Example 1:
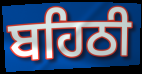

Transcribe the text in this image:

ਬਹਿਠੀ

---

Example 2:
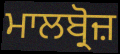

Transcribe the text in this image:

ਮਾਲਬ੍ਰੋਜ਼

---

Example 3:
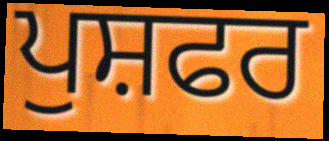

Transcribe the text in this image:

ਪੁਸ਼ਫਰ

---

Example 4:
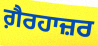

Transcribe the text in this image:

ਗ਼ੈਰਹਾਜ਼ਰ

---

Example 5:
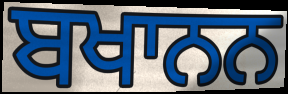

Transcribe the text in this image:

ਬਖਾਨਨ